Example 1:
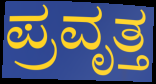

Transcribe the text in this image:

ಪ್ರವೃತ್ತ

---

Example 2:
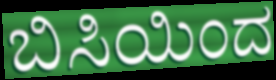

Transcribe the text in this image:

ಬಿಸಿಯಿಂದ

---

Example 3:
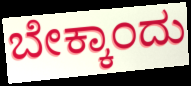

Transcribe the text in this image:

ಬೇಕ್ಕಾಂದು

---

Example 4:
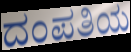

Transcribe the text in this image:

ದಂಪತಿಯ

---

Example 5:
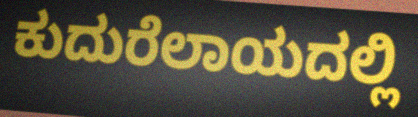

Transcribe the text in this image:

ಕುದುರೆಲಾಯದಲ್ಲಿ